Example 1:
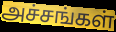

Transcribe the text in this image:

அச்சங்கள்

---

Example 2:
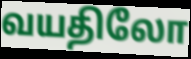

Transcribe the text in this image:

வயதிலோ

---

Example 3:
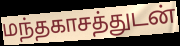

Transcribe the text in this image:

மந்தகாசத்துடன்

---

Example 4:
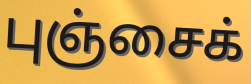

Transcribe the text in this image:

புஞ்சைக்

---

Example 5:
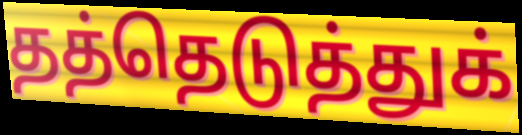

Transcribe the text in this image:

தத்தெடுத்துக்